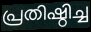
പ്രതിഷ്ഠിച്ച